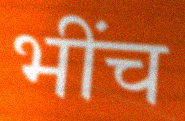
भींच